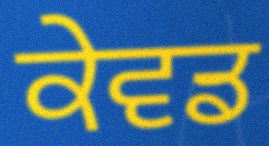
ਕੇਵਡ